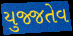
યુજ્જતેવ